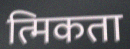
त्मिकता